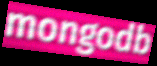
mongodb